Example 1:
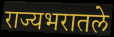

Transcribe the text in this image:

राज्यभरातले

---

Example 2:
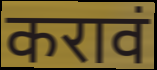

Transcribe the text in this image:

करावं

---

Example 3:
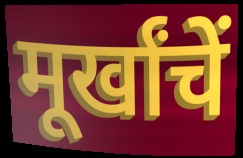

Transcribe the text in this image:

मूर्खांचें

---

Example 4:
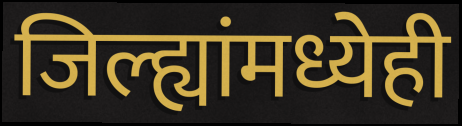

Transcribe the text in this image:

जिल्ह्यांमध्येही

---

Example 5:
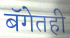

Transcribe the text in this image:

बॅगेतही